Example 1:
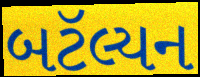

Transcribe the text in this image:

બટૅલ્યન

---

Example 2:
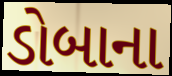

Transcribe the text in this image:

ડોબાના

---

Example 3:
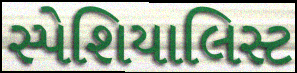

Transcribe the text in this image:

સ્પેશિયાલિસ્ટ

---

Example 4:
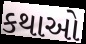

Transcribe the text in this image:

કથાઓ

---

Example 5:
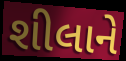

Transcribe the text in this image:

શીલાને